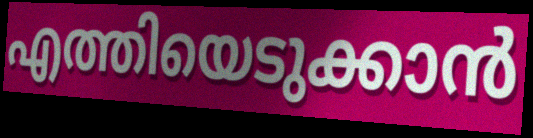
എത്തിയെടുക്കാൻ